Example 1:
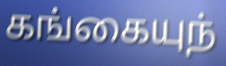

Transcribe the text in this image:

கங்கையுந்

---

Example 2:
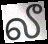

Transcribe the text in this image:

லீ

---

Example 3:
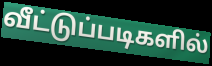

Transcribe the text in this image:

வீட்டுப்படிகளில்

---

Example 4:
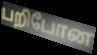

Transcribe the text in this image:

பறிபோன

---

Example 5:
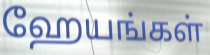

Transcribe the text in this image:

ஹேயங்கள்